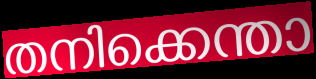
തനിക്കെന്താ